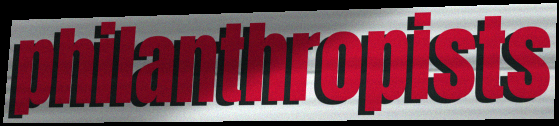
philanthropists